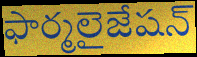
ఫార్మలైజేషన్